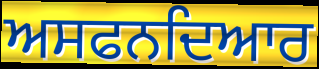
ਅਸਫਨਦਿਆਰ